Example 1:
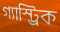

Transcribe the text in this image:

গ্যাস্ট্রিক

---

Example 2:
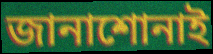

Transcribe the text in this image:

জানাশোনাই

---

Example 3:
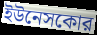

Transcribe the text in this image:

ইউনেসকোর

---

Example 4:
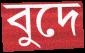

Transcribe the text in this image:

বুদে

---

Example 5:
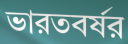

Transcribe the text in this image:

ভারতবর্ষর